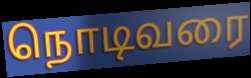
நொடிவரை